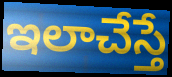
ఇలాచేస్తే